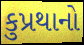
કુપ્રથાનો